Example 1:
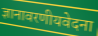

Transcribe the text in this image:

ज्ञानावरणीयवेदना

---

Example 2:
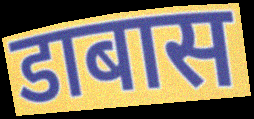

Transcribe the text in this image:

डाबास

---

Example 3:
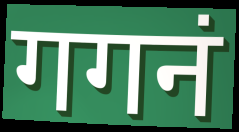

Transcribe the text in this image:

गगनं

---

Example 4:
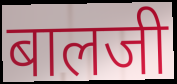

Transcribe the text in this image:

बालजी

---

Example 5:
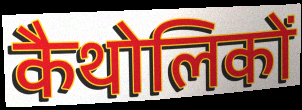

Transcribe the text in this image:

कैथोलिकों